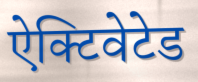
ऐक्टिवेटेड